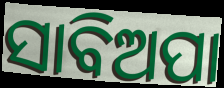
ସାବିଅପା